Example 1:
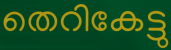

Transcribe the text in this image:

തെറികേട്ടു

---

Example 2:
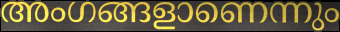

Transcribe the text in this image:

അംഗങ്ങളാണെന്നും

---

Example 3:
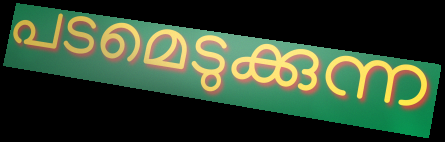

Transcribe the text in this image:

പടമെടുക്കുന്ന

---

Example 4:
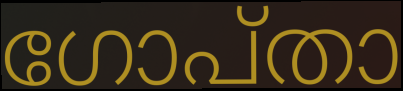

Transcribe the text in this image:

ഗോപ്താ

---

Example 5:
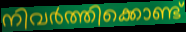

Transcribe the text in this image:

നിവർത്തിക്കൊണ്ട്